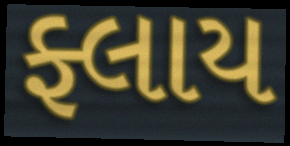
ફ્લાય